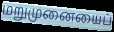
மறுமுனையைப்